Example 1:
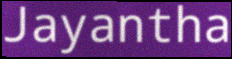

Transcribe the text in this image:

Jayantha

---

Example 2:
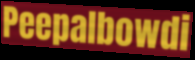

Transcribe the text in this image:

Peepalbowdi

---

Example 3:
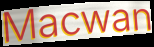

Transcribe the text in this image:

Macwan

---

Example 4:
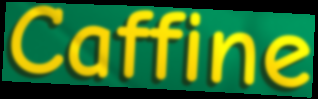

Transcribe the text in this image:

Caffine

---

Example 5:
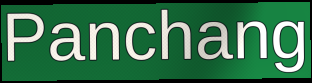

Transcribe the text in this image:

Panchang